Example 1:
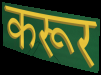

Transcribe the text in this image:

करूर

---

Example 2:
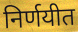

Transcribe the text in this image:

निर्णयीत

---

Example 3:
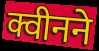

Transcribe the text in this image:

क्वीनने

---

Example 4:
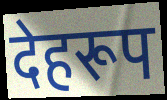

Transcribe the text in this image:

देहरूप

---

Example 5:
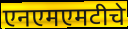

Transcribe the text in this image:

एनएमएमटीचे